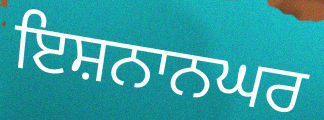
ਇਸ਼ਨਾਨਘਰ